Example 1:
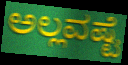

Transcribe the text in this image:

ಅಲ್ಲವಷ್ಟೆ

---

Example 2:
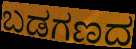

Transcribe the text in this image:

ಬಡಗಣದ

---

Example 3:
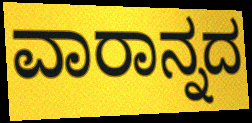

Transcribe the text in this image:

ವಾರಾನ್ನದ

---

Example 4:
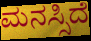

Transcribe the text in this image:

ಮನಸ್ಸಿದೆ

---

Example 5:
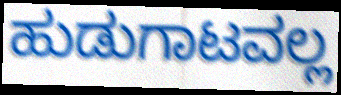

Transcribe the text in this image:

ಹುಡುಗಾಟವಲ್ಲ